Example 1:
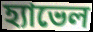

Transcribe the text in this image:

হ্যাভেল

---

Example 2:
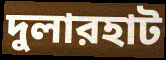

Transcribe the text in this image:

দুলারহাট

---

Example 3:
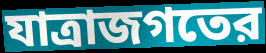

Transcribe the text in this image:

যাত্রাজগতের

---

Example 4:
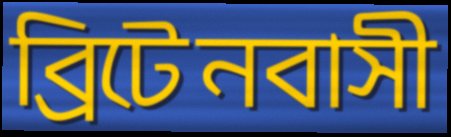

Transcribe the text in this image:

ব্রিটেনবাসী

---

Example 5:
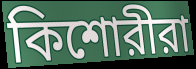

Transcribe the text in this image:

কিশোরীরা